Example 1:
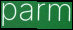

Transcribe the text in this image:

parm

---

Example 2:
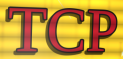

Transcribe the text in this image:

TCP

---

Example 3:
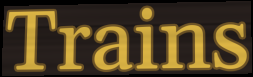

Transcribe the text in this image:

Trains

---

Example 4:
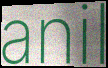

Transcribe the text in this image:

anil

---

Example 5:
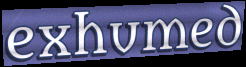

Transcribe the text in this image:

exhumed